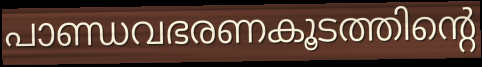
പാണ്ഡവഭരണകൂടത്തിന്റെ